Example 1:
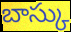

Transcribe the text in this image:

బాస్కు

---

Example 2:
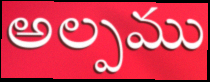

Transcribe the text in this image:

అల్పము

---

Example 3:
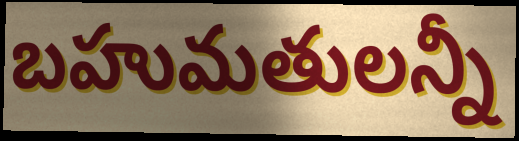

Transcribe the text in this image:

బహుమతులన్నీ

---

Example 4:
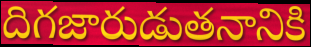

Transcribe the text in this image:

దిగజారుడుతనానికి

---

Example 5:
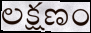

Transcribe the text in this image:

లక్షణం